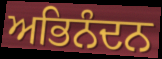
ਅਭਿਨੰਦਨ